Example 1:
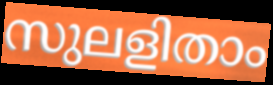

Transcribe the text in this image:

സുലളിതാം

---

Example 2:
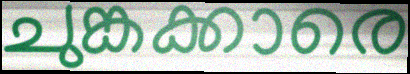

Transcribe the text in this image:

ചുങ്കക്കാരെ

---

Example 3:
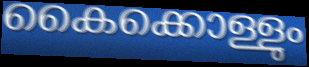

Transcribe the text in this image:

കൈക്കൊള്ളും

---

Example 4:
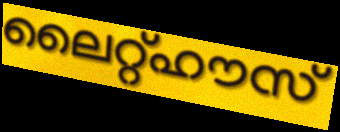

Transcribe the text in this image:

ലൈറ്റ്ഹൗസ്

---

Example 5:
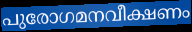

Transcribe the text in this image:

പുരോഗമനവീക്ഷണം